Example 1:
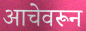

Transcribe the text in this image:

आचेवरून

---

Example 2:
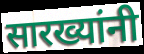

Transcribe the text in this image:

सारख्यांनी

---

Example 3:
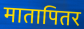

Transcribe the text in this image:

मातापितर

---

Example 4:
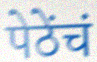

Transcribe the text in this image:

पेठेंचं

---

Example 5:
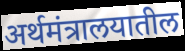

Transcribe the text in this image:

अर्थमंत्रालयातील